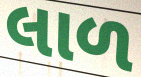
લાળ